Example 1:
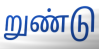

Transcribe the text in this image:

றுண்டு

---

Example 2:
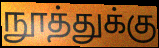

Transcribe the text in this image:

நூத்துக்கு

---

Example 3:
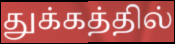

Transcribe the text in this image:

துக்கத்தில்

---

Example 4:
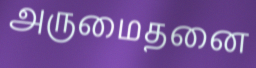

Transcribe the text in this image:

அருமைதனை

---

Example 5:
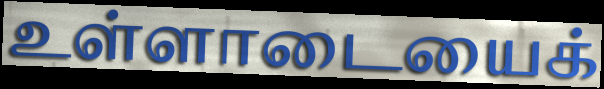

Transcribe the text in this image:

உள்ளாடையைக்